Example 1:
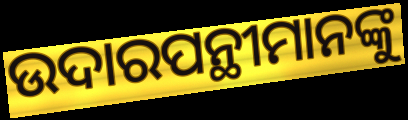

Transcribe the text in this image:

ଉଦାରପନ୍ଥୀମାନଙ୍କୁ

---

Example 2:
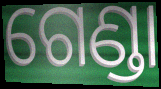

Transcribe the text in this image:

ଗେଣ୍ଡା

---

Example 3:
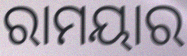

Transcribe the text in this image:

ରାମୟାର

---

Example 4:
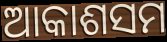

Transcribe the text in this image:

ଆକାଶସମ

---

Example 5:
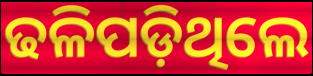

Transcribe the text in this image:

ଢଳିପଡ଼ିଥିଲେ